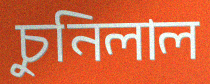
চুনিলাল